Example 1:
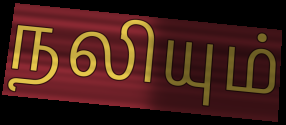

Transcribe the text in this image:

நலியும்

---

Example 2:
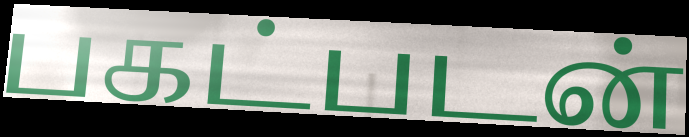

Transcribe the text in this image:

பகட்படன்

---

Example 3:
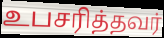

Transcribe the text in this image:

உபசரித்தவர்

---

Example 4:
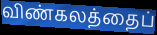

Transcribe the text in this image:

விண்கலத்தைப்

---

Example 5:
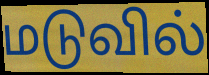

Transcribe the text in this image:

மடுவில்